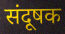
संदूषक